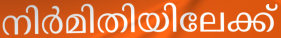
നിർമിതിയിലേക്ക്